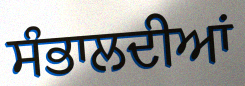
ਸੰਭਾਲਦੀਆਂ